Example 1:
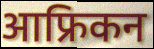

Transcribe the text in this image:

आफ्रिकन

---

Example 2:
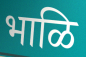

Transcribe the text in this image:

भाळि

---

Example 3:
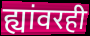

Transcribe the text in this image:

ह्यांवरही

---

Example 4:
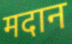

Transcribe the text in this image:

मदान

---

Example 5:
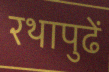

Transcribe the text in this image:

रथापुढें